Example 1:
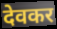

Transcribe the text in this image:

देवकर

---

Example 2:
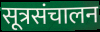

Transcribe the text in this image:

सूत्रसंचालन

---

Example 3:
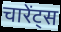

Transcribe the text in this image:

चारेंट्स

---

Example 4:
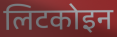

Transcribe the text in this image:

लिटकोइन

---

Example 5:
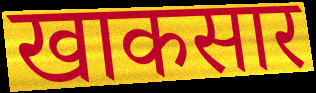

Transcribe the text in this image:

खाकसार